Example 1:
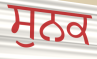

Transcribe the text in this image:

ਸੁਨਕ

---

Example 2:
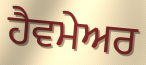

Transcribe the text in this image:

ਹੈਵਮੇਅਰ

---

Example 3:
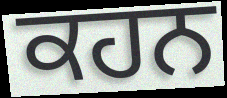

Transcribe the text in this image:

ਕਹਨ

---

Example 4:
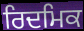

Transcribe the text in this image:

ਰਿਦਮਿਕ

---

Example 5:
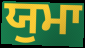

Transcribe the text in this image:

ਯੁਮਾ